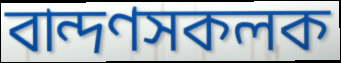
বান্দণসকলক